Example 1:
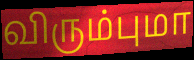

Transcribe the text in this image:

விரும்புமா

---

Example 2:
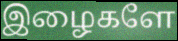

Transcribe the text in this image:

இழைகளே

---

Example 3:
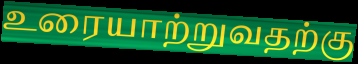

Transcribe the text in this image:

உரையாற்றுவதற்கு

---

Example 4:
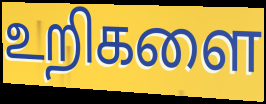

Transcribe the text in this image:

உறிகளை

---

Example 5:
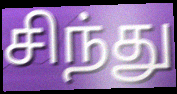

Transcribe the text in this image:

சிந்து